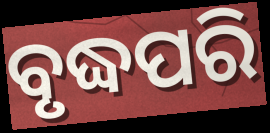
ବୃଦ୍ଧପରି